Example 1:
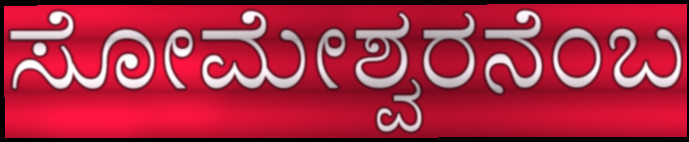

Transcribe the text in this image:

ಸೋಮೇಶ್ವರನೆಂಬ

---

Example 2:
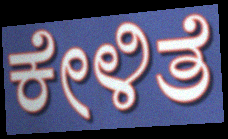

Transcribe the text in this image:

ಕೇಳಿತೆ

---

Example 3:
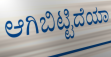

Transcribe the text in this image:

ಆಗಿಬಿಟ್ಟಿದೆಯಾ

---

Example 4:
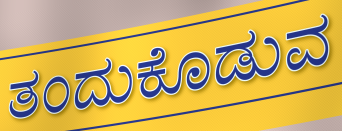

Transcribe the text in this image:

ತಂದುಕೊಡುವ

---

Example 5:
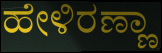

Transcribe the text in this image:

ಹೇಳಿರಣ್ಣಾ